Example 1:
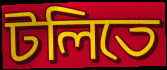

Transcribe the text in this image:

টলিতে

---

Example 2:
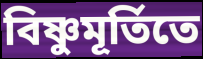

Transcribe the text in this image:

বিষ্ণুমূর্তিতে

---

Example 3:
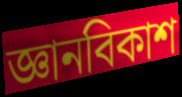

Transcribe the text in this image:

জ্ঞানবিকাশ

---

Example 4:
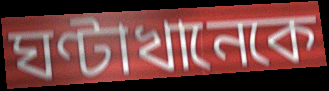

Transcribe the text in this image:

ঘণ্টাখানেকে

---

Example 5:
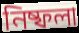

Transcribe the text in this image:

নিষ্ফলা